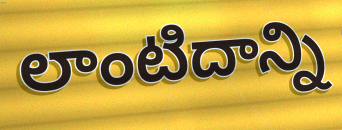
లాంటిదాన్ని